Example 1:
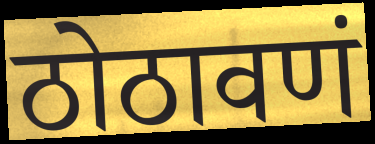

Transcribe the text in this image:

ठोठावणं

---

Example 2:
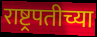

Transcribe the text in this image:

राष्ट्रपतीच्या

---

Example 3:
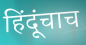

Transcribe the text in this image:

हिंदूंचाच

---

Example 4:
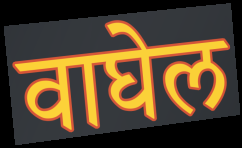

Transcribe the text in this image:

वाघेल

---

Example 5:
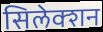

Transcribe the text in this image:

सिलेक्शन